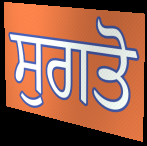
ਸੁਗਤੋ